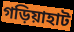
গড়িয়াহাট